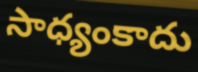
సాధ్యంకాదు